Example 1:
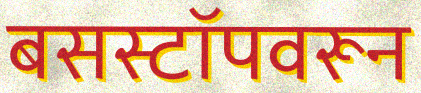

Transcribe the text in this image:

बसस्टॉपवरून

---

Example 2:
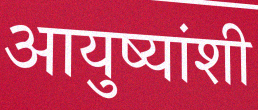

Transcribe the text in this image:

आयुष्यांशी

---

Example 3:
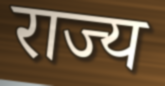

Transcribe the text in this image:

राज्य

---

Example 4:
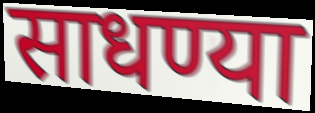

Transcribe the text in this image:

साधण्या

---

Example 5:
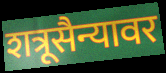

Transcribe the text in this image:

शत्रूसैन्यावर